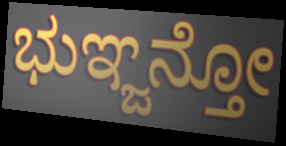
ಭುಞ್ಜನ್ತೋ